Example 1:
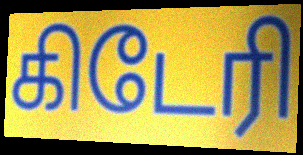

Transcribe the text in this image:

கிடேரி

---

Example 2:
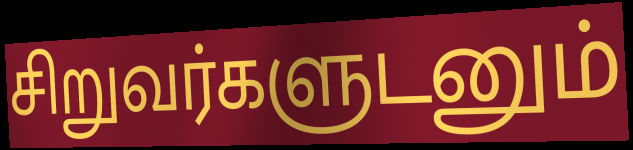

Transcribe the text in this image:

சிறுவர்களுடனும்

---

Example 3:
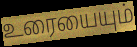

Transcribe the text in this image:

உரையையும்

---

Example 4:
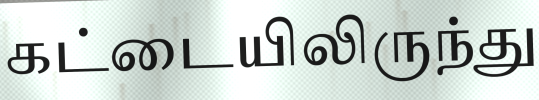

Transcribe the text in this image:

கட்டையிலிருந்து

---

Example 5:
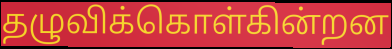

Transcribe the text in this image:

தழுவிக்கொள்கின்றன